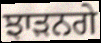
ਝਾੜਨਗੇ